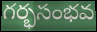
గర్భసంభవ